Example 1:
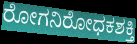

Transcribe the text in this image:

ರೋಗನಿರೋಧಕಶಕ್ತಿ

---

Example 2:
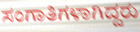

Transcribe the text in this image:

ಸಂಗಾತಿಗಳಾಗಿದ್ದರು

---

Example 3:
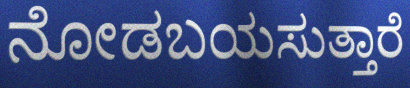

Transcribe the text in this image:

ನೋಡಬಯಸುತ್ತಾರೆ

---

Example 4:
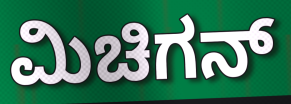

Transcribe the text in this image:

ಮಿಚಿಗನ್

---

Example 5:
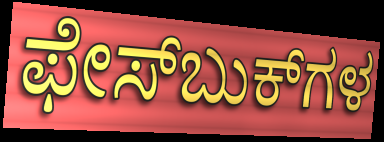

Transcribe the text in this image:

ಫೇಸ್‌ಬುಕ್‌ಗಳ